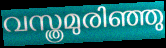
വസ്ത്രമുരിഞ്ഞു